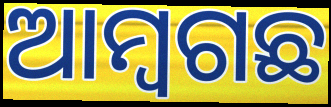
ଆମ୍ୱଗଛ